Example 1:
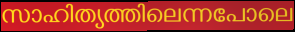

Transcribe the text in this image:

സാഹിത്യത്തിലെന്നപോലെ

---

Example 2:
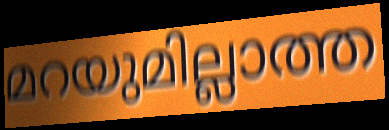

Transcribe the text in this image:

മറയുമില്ലാത്ത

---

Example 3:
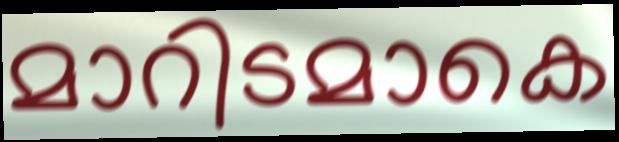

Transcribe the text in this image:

മാറിടമാകെ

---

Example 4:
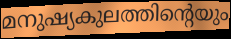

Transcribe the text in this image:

മനുഷ്യകുലത്തിന്റെയും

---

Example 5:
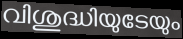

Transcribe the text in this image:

വിശുദ്ധിയുടേയും